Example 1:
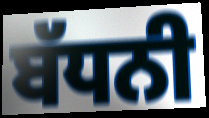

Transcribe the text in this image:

ਬੱਧਨੀ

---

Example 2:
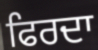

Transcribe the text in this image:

ਫਿਰਦਾ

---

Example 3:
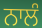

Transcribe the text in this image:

ਨਾਲੰ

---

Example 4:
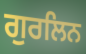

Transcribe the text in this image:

ਗੁਰਲਿਨ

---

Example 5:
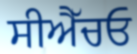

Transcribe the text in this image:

ਸੀਐੱਚਓ